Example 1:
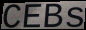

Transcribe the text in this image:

CEBs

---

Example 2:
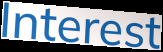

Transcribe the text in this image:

Interest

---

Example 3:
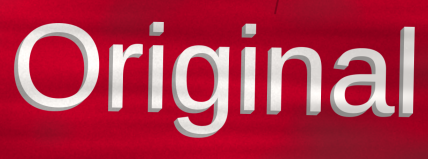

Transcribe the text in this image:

Original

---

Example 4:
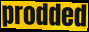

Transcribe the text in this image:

prodded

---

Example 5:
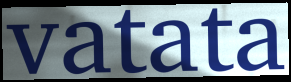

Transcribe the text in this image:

vatata